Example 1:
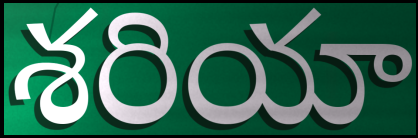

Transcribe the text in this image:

శరియా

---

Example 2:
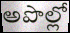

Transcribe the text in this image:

అపొల్లో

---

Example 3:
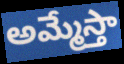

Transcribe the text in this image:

అమ్మేస్తా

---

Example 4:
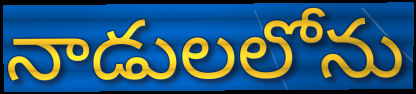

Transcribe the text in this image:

నాడులలోను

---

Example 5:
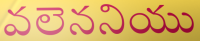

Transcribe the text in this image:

వలెననియు